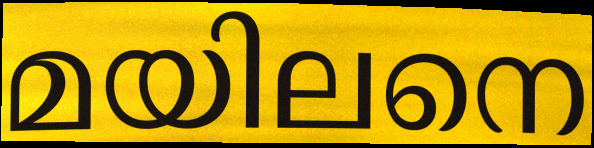
മയിലനെ